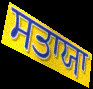
ਸਤਾਯਾ